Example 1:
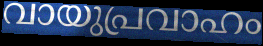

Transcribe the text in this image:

വായുപ്രവാഹം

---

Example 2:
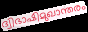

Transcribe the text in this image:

ദ്വിഭാഷിമുഖാന്തരം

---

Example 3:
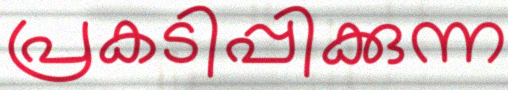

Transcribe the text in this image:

പ്രകടിപ്പിക്കുന്ന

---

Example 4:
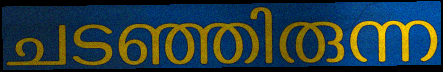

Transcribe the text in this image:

ചടഞ്ഞിരുന്ന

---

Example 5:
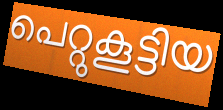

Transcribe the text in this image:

പെറ്റുകൂട്ടിയ